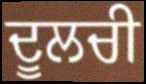
ਦੂਲਚੀ